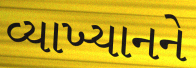
વ્યાખ્યાનને